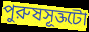
পুৰুষসূক্তটো